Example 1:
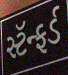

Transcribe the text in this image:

સ્ટૅન્ફર્ડ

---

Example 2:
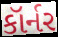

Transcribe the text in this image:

કૉર્નર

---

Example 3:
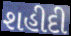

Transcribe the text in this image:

શહીદી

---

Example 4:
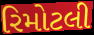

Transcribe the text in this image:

રિમોટલી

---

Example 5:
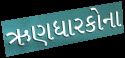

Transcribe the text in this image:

ઋણધારકોના